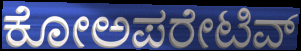
ಕೋಅಪರೇಟಿವ್